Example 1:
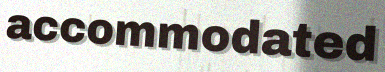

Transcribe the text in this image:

accommodated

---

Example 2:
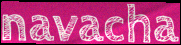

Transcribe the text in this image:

navacha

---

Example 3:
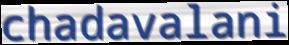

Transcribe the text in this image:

chadavalani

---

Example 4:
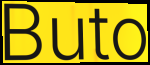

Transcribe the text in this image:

Buto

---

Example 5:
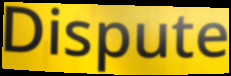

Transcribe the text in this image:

Dispute